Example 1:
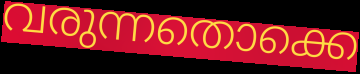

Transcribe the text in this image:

വരുന്നതൊക്കെ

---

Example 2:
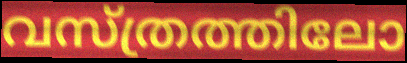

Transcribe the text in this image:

വസ്ത്രത്തിലോ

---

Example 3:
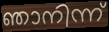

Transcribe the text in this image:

ഞാനിന്ന്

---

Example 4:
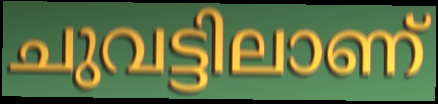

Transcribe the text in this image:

ചുവട്ടിലാണ്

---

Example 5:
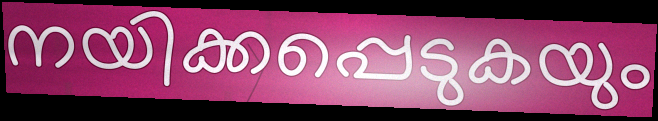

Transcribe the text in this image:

നയിക്കപ്പെടുകയും